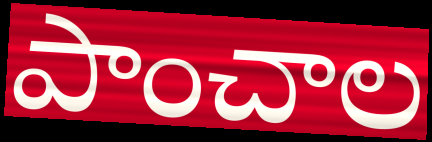
పాంచాల